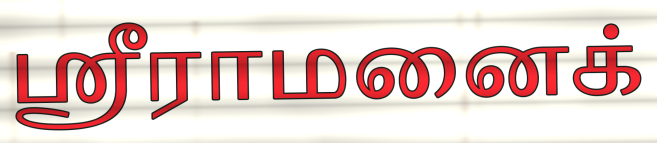
ஸ்ரீராமனைக்